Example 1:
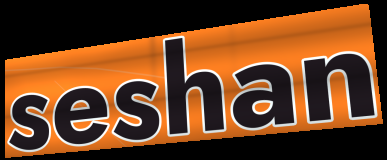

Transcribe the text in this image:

seshan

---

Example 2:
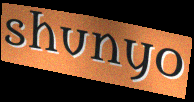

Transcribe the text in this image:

shunyo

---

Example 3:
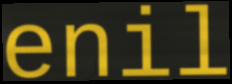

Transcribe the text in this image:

enil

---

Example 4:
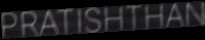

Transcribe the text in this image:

PRATISHTHAN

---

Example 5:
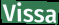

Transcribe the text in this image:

Vissa